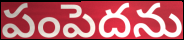
పంపెదను